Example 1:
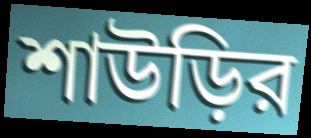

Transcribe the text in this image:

শাউড়ির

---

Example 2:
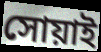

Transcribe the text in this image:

সোয়াই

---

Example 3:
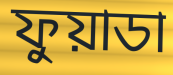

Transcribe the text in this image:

ফুয়াডা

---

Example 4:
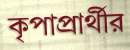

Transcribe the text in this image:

কৃপাপ্রার্থীর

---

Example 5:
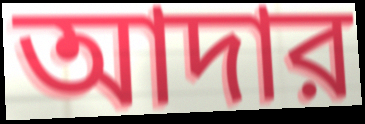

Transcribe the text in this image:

আদার